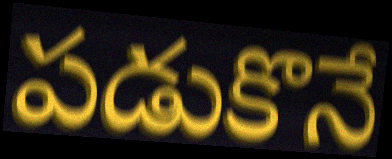
పడుకొనే